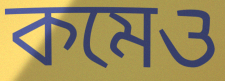
কমেও